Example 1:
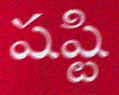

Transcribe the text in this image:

షష్టి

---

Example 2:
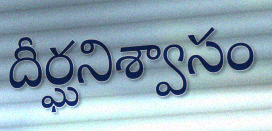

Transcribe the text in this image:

దీర్ఘనిశ్వాసం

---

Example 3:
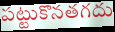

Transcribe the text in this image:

పట్టుకొనతగదు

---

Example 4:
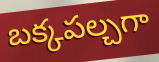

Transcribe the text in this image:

బక్కపల్చగా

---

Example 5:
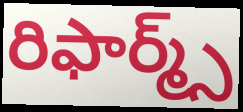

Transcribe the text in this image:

రిఫార్మ్స్